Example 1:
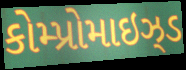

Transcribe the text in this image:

કોમ્પ્રોમાઇઝ્ડ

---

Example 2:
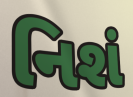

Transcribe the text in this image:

નિશં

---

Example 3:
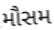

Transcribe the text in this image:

મૌસમ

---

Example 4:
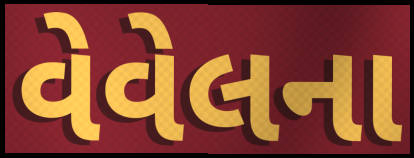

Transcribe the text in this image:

વેવેલના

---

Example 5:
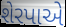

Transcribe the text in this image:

શેરપાએ